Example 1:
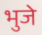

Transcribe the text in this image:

भुजे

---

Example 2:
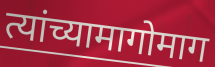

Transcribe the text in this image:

त्यांच्यामागोमाग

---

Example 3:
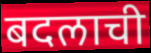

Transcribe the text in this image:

बदलाची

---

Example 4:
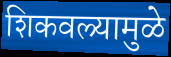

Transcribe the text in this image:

शिकवल्यामुळे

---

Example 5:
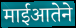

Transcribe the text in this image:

माईआतेने